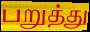
பறுத்து